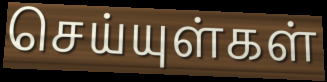
செய்யுள்கள்